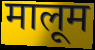
मालूम